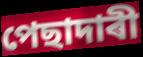
পেছাদাৰী